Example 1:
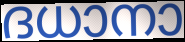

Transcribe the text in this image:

ദധാനാ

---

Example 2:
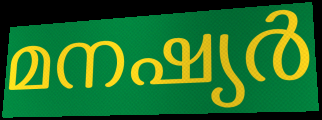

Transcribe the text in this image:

മനഷ്യർ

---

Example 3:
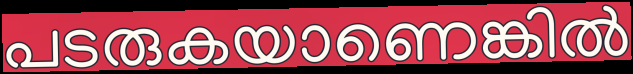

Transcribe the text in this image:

പടരുകയാണെങ്കിൽ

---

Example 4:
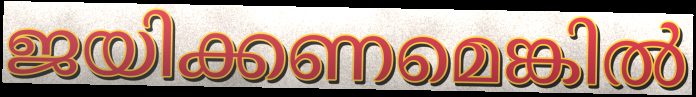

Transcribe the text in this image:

ജയിക്കണമെങ്കിൽ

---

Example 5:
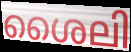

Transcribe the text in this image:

ശൈലി